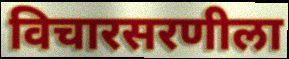
विचारसरणीला